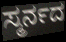
ಸ್ಮರ್ನದ